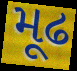
મૂઢ